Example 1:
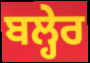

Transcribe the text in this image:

ਬਲ੍ਹੇਰ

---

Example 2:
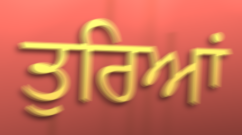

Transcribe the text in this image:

ਤੁਰਿਆਂ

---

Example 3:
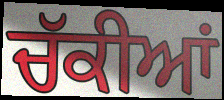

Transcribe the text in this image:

ਚੱਕੀਆਂ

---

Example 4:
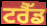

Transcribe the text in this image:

ਟਰੈੱਡ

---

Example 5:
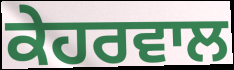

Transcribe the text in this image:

ਕੇਹਰਵਾਲ